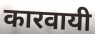
कारवायी